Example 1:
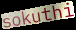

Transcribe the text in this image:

sokuthi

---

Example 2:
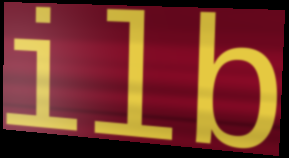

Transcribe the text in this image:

ilb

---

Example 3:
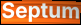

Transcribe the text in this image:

Septum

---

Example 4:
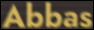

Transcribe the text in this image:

Abbas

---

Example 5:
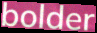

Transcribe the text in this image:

bolder